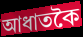
আধাতকৈ